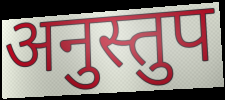
अनुस्तुप